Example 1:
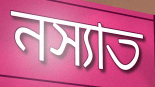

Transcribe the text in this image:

নস্যাত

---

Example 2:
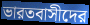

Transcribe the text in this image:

ভারতবাসীদের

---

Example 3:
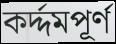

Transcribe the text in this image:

কর্দ্দমপূর্ণ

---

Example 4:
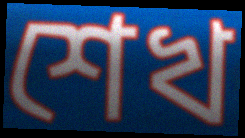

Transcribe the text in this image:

শেখ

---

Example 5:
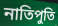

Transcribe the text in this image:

নাতিপুতি